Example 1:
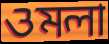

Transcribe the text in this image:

ওমলা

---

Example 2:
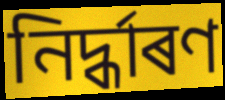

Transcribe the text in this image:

নিৰ্দ্ধাৰণ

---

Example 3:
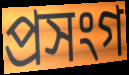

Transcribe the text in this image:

প্ৰসংগ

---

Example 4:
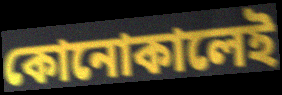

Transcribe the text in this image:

কোনোকালেই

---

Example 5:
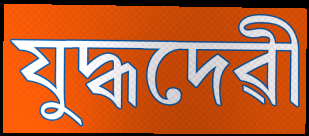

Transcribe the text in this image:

যুদ্ধদেৱী